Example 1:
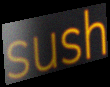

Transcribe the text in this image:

sush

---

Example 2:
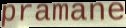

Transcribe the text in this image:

pramane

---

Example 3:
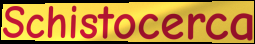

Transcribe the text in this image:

Schistocerca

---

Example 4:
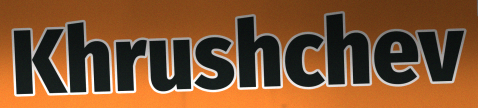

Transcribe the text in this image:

Khrushchev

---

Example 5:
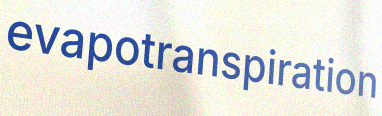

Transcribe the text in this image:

evapotranspiration